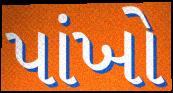
પાંખો